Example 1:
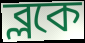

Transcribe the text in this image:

ব্লকে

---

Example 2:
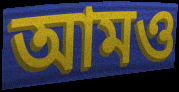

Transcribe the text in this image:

আমও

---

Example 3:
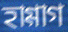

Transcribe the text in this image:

হাগ্গাগ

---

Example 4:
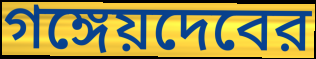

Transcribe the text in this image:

গঙ্গেয়দেবের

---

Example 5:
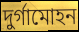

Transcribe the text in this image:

দুর্গামোহন